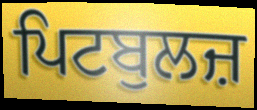
ਪਿਟਬੁਲਜ਼